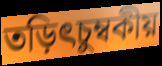
তড়িৎচুম্বকীয়